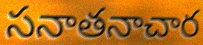
సనాతనాచార